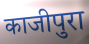
काजीपुरा